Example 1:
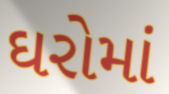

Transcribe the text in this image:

ઘરોમાં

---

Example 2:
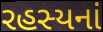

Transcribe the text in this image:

રહસ્યનાં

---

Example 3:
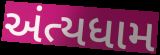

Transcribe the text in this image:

અંત્યધામ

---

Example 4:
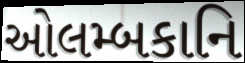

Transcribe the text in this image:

ઓલમ્બકાનિ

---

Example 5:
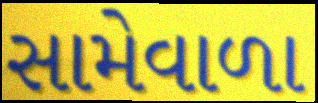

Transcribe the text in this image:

સામેવાળા